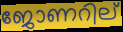
ജോണറില്